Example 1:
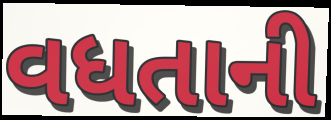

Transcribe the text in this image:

વધતાની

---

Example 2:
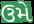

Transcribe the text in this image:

ઉમે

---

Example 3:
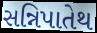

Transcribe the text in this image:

સન્નિપાતેથ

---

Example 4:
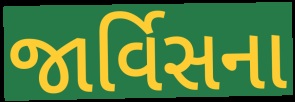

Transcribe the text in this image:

જાર્વિસના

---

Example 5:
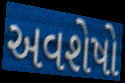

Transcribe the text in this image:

અવશેષો